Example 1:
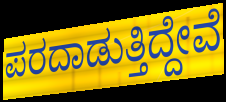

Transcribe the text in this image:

ಪರದಾಡುತ್ತಿದ್ದೇವೆ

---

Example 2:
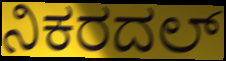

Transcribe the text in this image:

ನಿಕರದಲ್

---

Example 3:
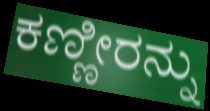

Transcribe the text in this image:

ಕಣ್ಣೀರನ್ನು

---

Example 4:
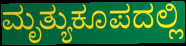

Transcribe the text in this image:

ಮೃತ್ಯುಕೂಪದಲ್ಲಿ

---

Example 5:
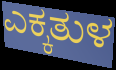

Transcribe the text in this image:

ಎಕ್ಕತುಳ